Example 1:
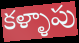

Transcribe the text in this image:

కళ్ళాపు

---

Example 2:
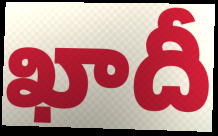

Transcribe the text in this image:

ఖాదీ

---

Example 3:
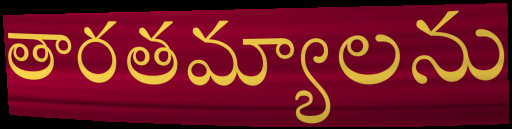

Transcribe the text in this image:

తారతమ్యాలను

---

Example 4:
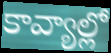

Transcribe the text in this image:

కావ్యాల్లో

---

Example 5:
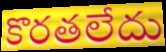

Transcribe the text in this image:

కొరతలేదు